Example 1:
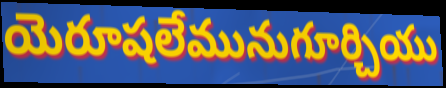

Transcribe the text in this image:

యెరూషలేమునుగూర్చియు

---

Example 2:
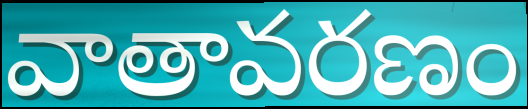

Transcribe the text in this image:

వాతావరణం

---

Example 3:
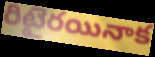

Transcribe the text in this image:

రిటైరయినాక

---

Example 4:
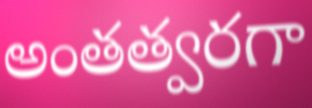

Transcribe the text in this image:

అంతత్వరగా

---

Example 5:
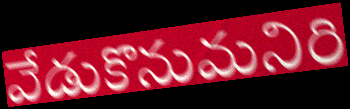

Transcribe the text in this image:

వేడుకొనుమనిరి